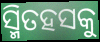
ସ୍ମିତହସକୁ